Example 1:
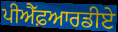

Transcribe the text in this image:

ਪੀਐੱਫ਼ਆਰਡੀਏ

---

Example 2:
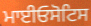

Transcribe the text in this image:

ਮਾਈਓਸੋਟਿਸ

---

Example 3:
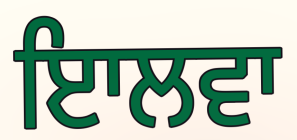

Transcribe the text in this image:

ਇਾਲਵਾ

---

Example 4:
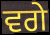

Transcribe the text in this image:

ਵਗੇ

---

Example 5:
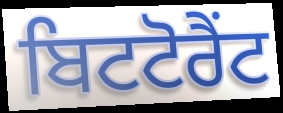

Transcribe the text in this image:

ਬਿਟਟੋਰੈਂਟ